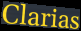
Clarias